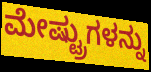
ಮೇಷ್ಟ್ರುಗಳನ್ನು